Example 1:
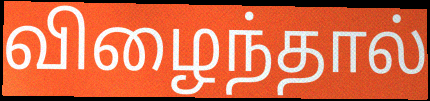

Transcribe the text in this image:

விழைந்தால்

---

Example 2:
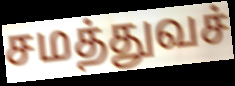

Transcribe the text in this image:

சமத்துவச்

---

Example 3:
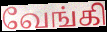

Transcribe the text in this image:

வேங்கி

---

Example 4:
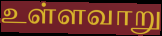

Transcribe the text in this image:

உள்ளவாறு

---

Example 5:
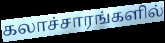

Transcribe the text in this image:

கலாச்சாரங்களில்